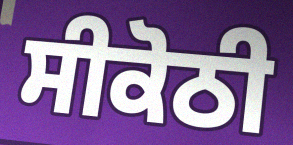
ਸੀਕੋਠੀ